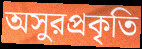
অসুরপ্রকৃতি